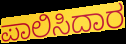
ಪಾಲಿಸಿದಾರ